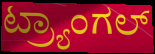
ಟ್ರ್ಯಾಂಗಲ್